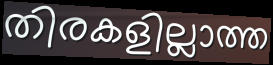
തിരകളില്ലാത്ത